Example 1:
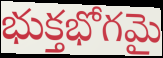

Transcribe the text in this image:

భుక్తభోగమై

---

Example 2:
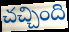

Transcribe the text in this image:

చచ్చింది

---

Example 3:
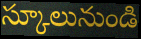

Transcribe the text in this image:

స్కూలునుండి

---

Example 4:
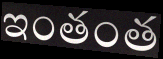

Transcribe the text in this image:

ఇంతంత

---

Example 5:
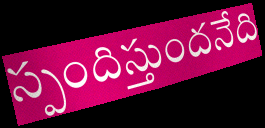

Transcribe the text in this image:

స్పందిస్తుందనేది